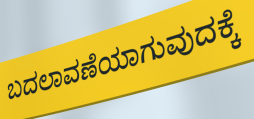
ಬದಲಾವಣೆಯಾಗುವುದಕ್ಕೆ